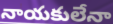
నాయకులేనా